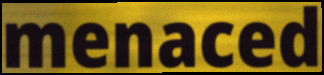
menaced